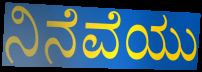
ನಿನೆವೆಯು